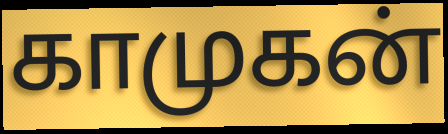
காமுகன்